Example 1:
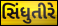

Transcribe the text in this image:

સિંધુતીરે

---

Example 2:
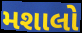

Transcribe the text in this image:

મશાલો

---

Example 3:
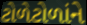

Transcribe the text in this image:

ટોળેટોળાંને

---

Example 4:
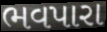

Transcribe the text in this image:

ભવપારા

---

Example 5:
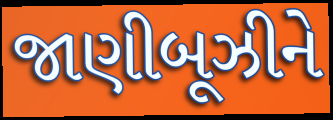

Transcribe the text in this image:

જાણીબૂઝીને